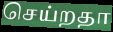
செய்றதா